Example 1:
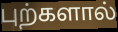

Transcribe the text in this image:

புற்களால்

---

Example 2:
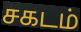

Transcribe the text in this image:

சகடம்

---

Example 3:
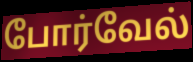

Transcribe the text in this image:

போர்வேல்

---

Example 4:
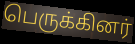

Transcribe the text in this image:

பெருக்கினர்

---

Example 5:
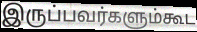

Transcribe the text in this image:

இருப்பவர்களும்கூட